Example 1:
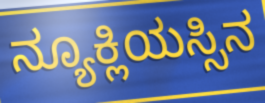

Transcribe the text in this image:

ನ್ಯೂಕ್ಲಿಯಸ್ಸಿನ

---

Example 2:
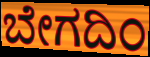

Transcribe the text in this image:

ಬೇಗದಿಂ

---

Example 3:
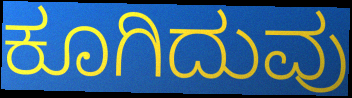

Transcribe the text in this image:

ಕೂಗಿದುವು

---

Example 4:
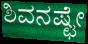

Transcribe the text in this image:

ಶಿವನಷ್ಟೇ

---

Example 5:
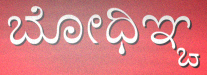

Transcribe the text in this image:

ಬೋಧಿಞ್ಚ